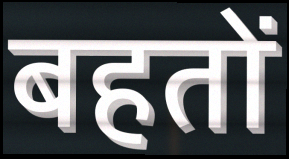
बहतों